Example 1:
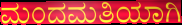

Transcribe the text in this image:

ಮಂದಮತಿಯಾಗಿ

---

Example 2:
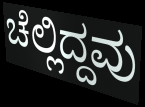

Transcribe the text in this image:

ಚೆಲ್ಲಿದ್ದವು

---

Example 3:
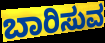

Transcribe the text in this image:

ಬಾರಿಸುವ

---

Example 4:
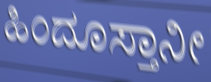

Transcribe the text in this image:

ಹಿಂದೂಸ್ತಾನೀ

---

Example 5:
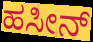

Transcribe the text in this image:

ಹಸೀನ್